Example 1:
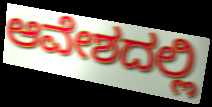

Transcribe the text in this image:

ಆವೇಶದಲ್ಲಿ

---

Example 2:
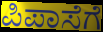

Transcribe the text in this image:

ಪಿಪಾಸೆಗೆ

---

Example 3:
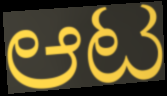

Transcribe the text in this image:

ಆಟ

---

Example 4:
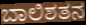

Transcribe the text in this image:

ಬಾಲಿಶತನ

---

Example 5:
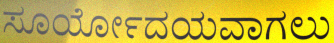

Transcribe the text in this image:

ಸೂರ್ಯೋದಯವಾಗಲು